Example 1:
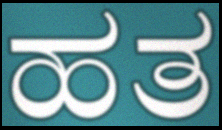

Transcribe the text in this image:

ಹತ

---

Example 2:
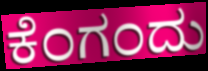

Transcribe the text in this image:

ಕೆಂಗಂದು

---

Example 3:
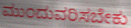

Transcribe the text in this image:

ಮುಂದುವರಿಸಬೇಕು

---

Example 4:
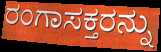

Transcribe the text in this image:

ರಂಗಾಸಕ್ತರನ್ನು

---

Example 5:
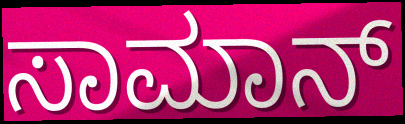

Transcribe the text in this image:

ಸಾಮಾನ್